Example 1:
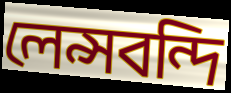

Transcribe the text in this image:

লেন্সবন্দি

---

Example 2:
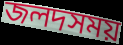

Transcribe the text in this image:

জলদসময়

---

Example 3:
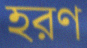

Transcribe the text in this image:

হরণ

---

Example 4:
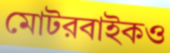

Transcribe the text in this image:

মোটরবাইকও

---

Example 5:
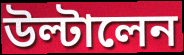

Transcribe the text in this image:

উল্টালেন